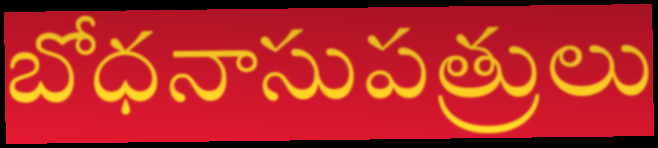
బోధనాసుపత్రులు